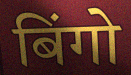
बिंगो